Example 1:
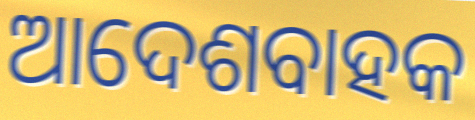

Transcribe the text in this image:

ଆଦେଶବାହକ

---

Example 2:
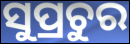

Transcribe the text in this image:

ସୁପ୍ରଚୁର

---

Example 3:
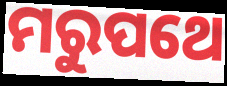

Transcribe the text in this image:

ମରୁପଥେ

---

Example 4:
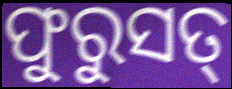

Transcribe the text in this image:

ଫୁରୁସତ୍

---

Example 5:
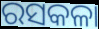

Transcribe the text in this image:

ରସକଳା